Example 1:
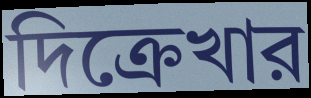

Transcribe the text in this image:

দিক্রেখার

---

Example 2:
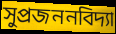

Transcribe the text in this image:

সুপ্রজননবিদ্যা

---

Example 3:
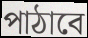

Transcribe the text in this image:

পাঠাবে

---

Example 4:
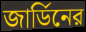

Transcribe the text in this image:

জার্ডিনের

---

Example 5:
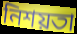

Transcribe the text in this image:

নিশয়তা